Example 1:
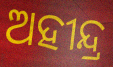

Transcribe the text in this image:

ଅହୀନ୍ଦ୍ର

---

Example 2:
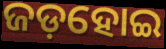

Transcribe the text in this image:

ଜଡ଼ହୋଇ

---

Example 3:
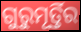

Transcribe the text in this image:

ଗୁରୁମୂର୍ତ୍ତିର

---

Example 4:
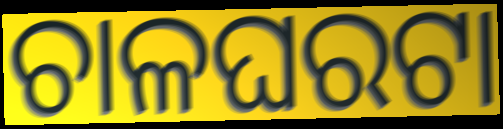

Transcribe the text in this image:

ଚାଳଘରଟା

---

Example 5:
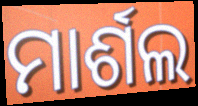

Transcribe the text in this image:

ମାର୍ଶଲ